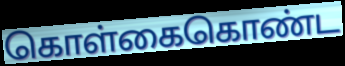
கொள்கைகொண்ட